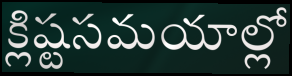
క్లిష్టసమయాల్లో